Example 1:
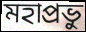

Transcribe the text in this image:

মহাপ্রভু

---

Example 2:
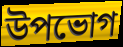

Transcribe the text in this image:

উপভোগ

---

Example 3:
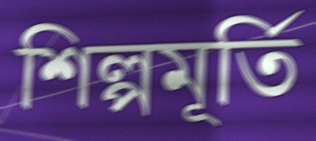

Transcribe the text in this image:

শিল্পমূর্তি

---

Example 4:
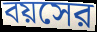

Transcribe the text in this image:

বয়সের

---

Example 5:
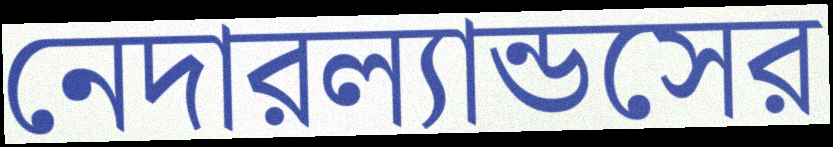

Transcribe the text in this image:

নেদারল্যান্ডসের